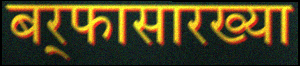
बर्फासारख्या